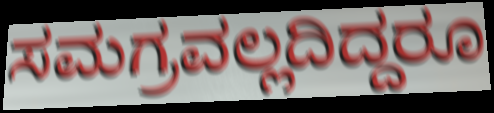
ಸಮಗ್ರವಲ್ಲದಿದ್ದರೂ